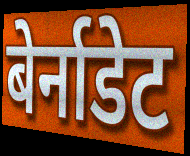
बेर्नाडेट